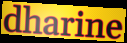
dharine